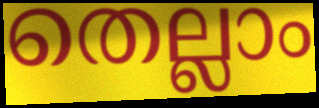
തെല്ലാം